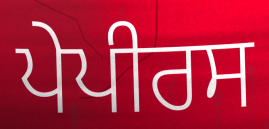
ਪੇਪੀਰਸ